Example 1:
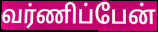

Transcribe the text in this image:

வர்ணிப்பேன்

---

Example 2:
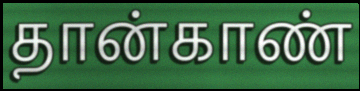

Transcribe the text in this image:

தான்காண்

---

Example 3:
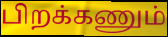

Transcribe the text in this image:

பிறக்கணும்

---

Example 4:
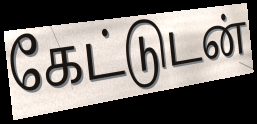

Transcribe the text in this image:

கேட்டுடன்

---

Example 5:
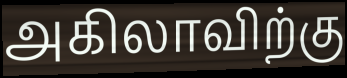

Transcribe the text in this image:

அகிலாவிற்கு